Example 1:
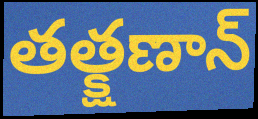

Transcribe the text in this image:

తత్క్షణాన్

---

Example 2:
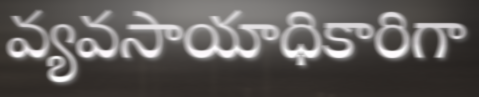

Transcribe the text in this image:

వ్యవసాయాధికారిగా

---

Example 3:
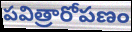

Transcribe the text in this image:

పవిత్రారోపణం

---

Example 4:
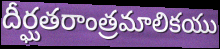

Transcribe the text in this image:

దీర్ఘతరాంత్రమాలికయు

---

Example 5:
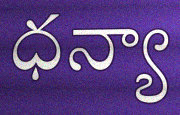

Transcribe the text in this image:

ధన్యా